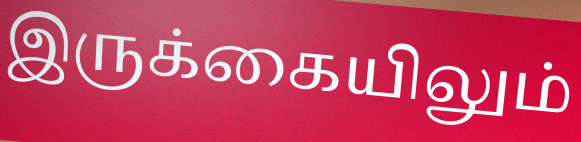
இருக்கையிலும்